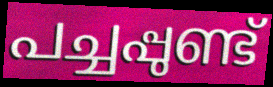
പച്ചപ്പുണ്ട്